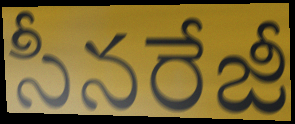
సీనరేజీ